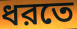
ধরতে